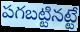
పగబట్టినట్టే